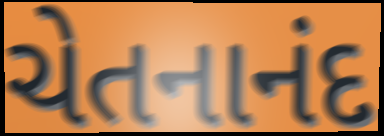
ચેતનાનંદ